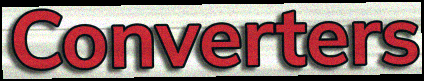
Converters